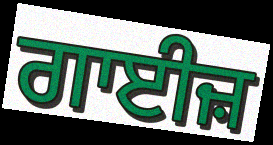
ਗਾਈਜ਼